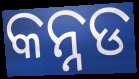
କନ୍ନଡ